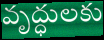
వృద్ధులకు